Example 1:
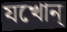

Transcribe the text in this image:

যখোন্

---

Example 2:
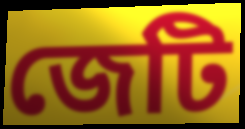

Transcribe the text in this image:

জেটি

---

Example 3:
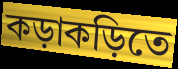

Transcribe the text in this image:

কড়াকড়িতে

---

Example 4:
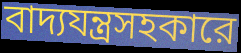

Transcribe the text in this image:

বাদ্যযন্ত্রসহকারে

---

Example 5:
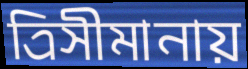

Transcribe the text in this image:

ত্রিসীমানায়